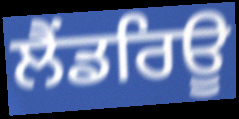
ਲੈਂਡਰਿਊ